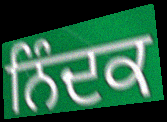
ਨਿੰਦਕ